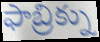
ఫాబ్రిక్ను